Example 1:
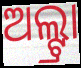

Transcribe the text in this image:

ଅଲ୍ଟ୍ରା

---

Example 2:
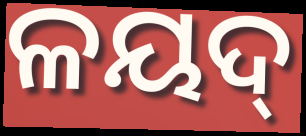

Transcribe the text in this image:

ଳୟଦ୍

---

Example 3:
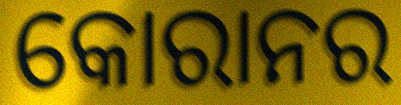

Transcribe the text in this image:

କୋରାନର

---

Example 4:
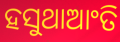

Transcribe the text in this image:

ହସୁଥାଆଂତି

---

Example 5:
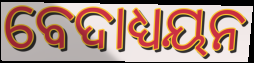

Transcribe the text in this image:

ବେଦାଧ୍ୟୟନ